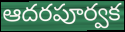
ఆదరపూర్వక